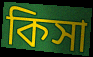
কিসা